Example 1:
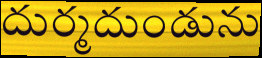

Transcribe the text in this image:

దుర్మదుండును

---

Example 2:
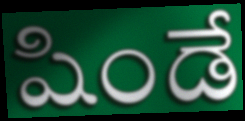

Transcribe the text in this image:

షిండే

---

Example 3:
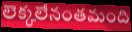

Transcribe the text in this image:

లెక్కలేనంతమంది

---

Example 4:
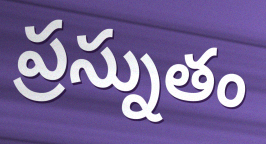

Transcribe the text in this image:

ప్రస్నుతం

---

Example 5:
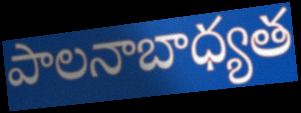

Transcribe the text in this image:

పాలనాబాధ్యత